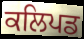
ਕਲਿਪਡ